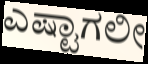
ಎಷ್ಟಾಗಲೀ